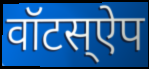
वॉटस्ऐप